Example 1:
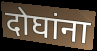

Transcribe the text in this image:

दोघांना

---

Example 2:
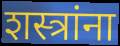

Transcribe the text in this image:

शस्त्रांना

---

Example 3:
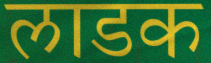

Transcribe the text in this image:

लाडक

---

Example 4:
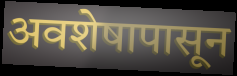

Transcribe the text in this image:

अवशेषापासून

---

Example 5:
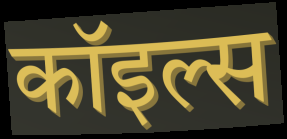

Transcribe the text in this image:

कॉइल्स